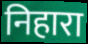
निहारा